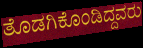
ತೊಡಗಿಕೊಂಡಿದ್ದವರು